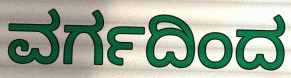
ವರ್ಗದಿಂದ